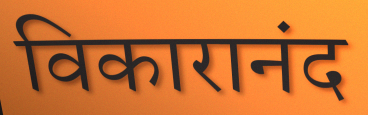
विकारानंद